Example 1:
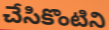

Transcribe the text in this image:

చేసికొంటిని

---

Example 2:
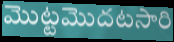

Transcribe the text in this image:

మొట్టమొదటసారి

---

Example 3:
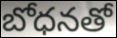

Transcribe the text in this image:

బోధనతో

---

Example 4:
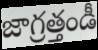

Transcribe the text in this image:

జాగ్రత్తండీ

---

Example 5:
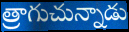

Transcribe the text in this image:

త్రాగుచున్నాడు